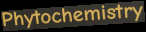
Phytochemistry